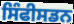
ਸਿੰਫੀਸਡਨ